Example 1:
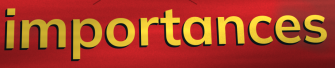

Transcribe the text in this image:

importances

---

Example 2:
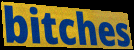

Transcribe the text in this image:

bitches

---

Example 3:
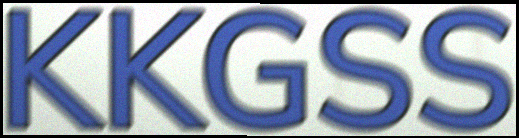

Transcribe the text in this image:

KKGSS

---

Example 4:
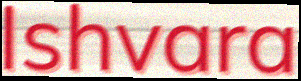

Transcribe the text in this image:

Ishvara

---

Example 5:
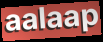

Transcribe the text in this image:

aalaap